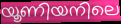
യൂണിയനിലെ